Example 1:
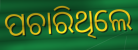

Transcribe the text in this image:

ପଚାରିଥିଲେ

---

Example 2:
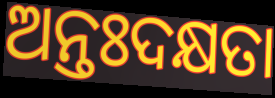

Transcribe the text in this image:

ଅନ୍ତଃଦକ୍ଷତା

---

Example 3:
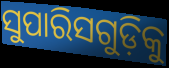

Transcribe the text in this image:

ସୁପାରିସଗୁଡ଼ିକୁ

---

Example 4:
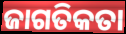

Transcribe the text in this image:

ଜାଗତିକତା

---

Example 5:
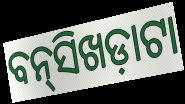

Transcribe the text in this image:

ବନ୍‌ସିଖଡ଼ାଟା